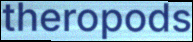
theropods